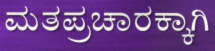
ಮತಪ್ರಚಾರಕ್ಕಾಗಿ